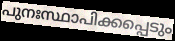
പുനഃസ്ഥാപിക്കപ്പെടും